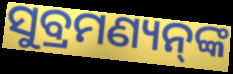
ସୁବ୍ରମଣ୍ୟନ୍‌ଙ୍କ